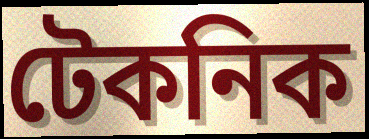
টেকনিক